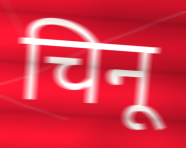
चिनू